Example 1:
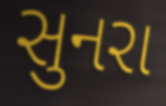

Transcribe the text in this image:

સુનરા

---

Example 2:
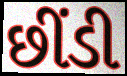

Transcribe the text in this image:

છીંડી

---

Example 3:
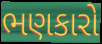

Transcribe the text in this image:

ભણકારો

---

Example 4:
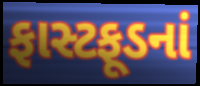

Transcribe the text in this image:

ફાસ્ટફૂડનાં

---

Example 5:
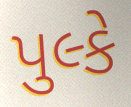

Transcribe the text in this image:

પુલ્કે